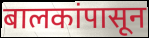
बालकांपासून